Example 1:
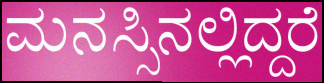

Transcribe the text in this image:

ಮನಸ್ಸಿನಲ್ಲಿದ್ದರೆ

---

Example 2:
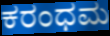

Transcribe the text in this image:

ಕರಂಧಮ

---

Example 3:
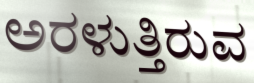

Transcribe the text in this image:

ಅರಳುತ್ತಿರುವ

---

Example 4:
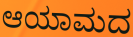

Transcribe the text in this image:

ಆಯಾಮದ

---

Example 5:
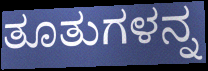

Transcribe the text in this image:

ತೂತುಗಳನ್ನ